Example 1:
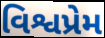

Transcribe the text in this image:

વિશ્વપ્રેમ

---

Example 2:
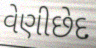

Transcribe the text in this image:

વેણીછેદ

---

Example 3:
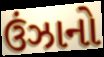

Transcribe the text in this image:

ઉંઝાનો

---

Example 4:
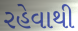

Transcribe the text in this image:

રહેવાથી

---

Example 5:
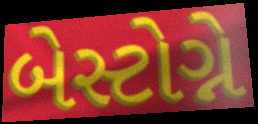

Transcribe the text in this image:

બેસ્ટોગ્ને